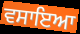
ਵਸਾਇਆ